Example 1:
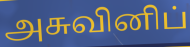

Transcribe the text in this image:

அசுவினிப்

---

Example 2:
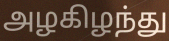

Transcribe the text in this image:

அழகிழந்து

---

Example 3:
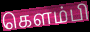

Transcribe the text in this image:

கெளம்பி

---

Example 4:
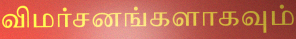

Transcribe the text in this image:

விமர்சனங்களாகவும்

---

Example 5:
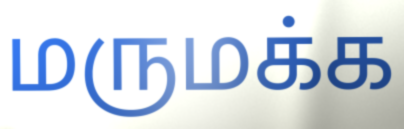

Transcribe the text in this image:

மருமக்க